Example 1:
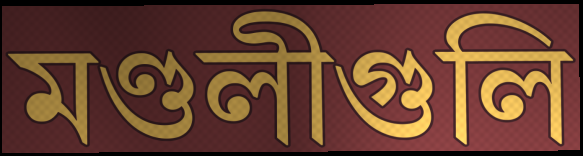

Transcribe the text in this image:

মণ্ডলীগুলি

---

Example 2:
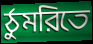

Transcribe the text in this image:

ঠুমরিতে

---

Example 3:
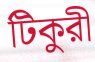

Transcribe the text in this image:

টিকুরী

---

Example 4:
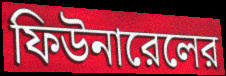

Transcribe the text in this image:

ফিউনারেলের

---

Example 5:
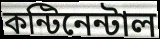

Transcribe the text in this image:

কন্টিনেন্টাল